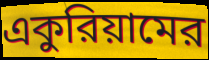
একুরিয়ামের